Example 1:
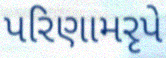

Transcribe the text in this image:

પરિણામરૃપે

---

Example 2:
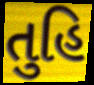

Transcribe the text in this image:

તુહિ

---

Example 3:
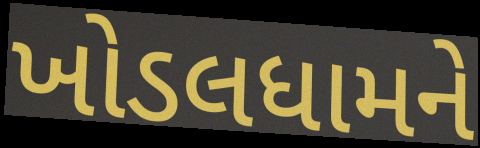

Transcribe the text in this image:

ખોડલધામને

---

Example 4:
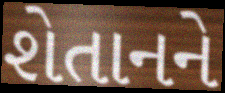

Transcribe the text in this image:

શેતાનને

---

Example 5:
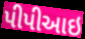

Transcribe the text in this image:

પીપીઆઇ